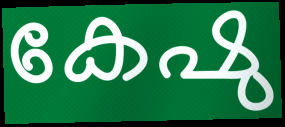
കേഷു